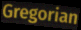
Gregorian